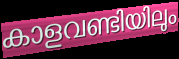
കാളവണ്ടിയിലും